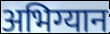
अभिग्यान